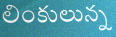
లింకులున్న